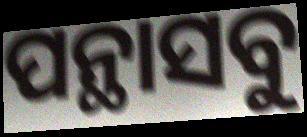
ପନ୍ଥାସବୁ